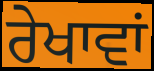
ਰੇਖਾਵਾਂ